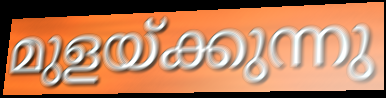
മുളയ്ക്കുന്നു